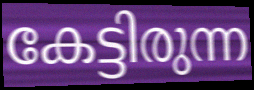
കേട്ടിരുന്ന